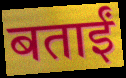
बताईं